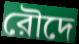
রৌদে